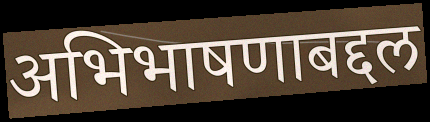
अभिभाषणाबद्दल